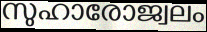
സുഹാരോജ്വലം